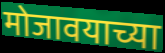
मोजावयाच्या